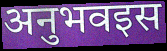
अनुभवइस